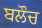
ਬਲੌਚ